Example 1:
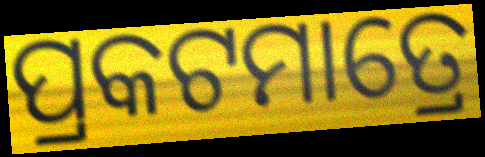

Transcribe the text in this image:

ପ୍ରକଟମାତ୍ରେ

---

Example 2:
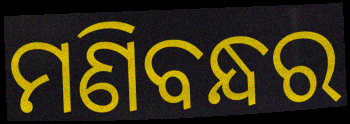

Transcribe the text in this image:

ମଣିବନ୍ଧର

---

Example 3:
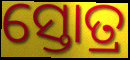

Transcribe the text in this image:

ସ୍ତୋତ୍ର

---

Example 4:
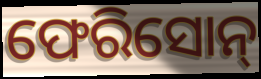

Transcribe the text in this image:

ଫେରିସୋନ୍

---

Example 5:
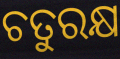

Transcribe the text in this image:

ଚତୁରକ୍ଷ